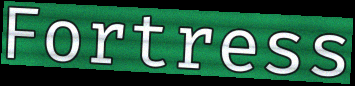
Fortress